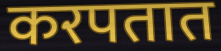
करपतात